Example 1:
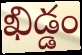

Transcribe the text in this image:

ఖిడ్డం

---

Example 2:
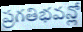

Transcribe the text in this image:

ప్రగతిభవన్లో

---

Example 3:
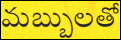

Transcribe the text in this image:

మబ్బులతో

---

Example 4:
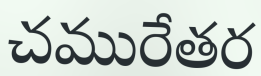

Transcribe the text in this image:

చమురేతర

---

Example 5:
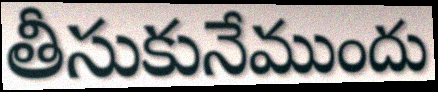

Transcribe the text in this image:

తీసుకునేముందు